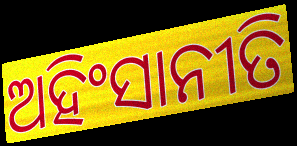
ଅହିଂସାନୀତି